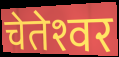
चेतेश्वर